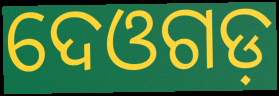
ଦେଓଗଡ଼